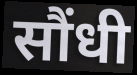
सौंधी